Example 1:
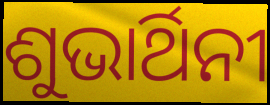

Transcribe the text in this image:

ଶୁଭାର୍ଥିନୀ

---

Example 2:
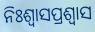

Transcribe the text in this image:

ନିଃଶ୍ୱାସପ୍ରଶ୍ୱାସ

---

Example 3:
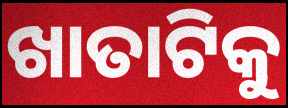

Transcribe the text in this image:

ଖାତାଟିକୁ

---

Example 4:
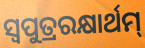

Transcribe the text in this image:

ସ୍ଵପୁତ୍ରରକ୍ଷାର୍ଥମ୍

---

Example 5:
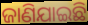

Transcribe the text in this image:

ଜାଣିଯାଇଛି